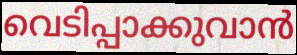
വെടിപ്പാക്കുവാൻ